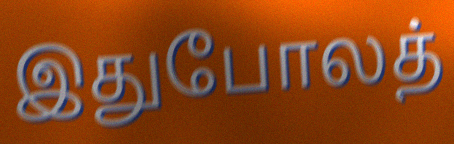
இதுபோலத்